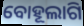
ବୋହୂଲାଗି